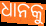
ଧାନକୁ